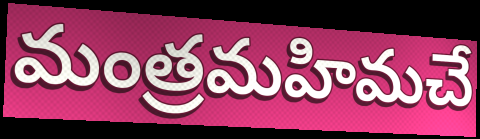
మంత్రమహిమచే